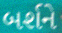
બર્શને